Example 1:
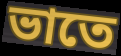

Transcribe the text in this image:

ভাতে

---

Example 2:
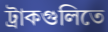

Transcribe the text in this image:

ট্রাকগুলিতে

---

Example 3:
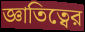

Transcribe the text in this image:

জ্ঞাতিত্বের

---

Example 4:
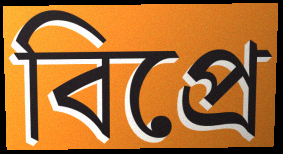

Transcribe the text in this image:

বিপ্রে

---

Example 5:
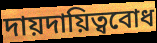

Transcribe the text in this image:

দায়দায়িত্ববোধ